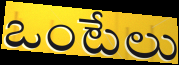
ఒంటేలు